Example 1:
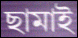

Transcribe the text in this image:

ছামাই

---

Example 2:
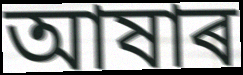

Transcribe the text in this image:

আষাৰ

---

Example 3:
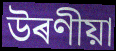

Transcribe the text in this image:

উৰণীয়া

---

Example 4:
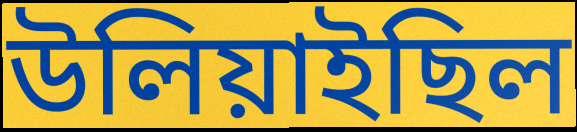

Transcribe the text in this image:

উলিয়াইছিল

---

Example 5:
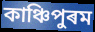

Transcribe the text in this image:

কাঞ্চিপুৰম